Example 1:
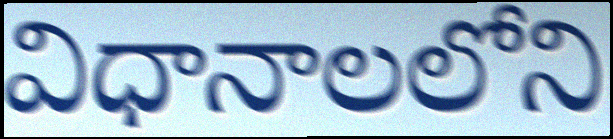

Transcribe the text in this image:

విధానాలలోని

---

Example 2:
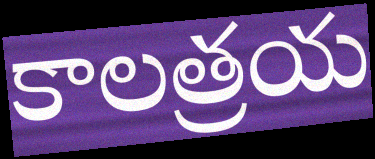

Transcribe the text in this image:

కాలత్రయ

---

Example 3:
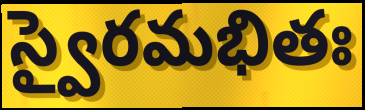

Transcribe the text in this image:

స్వైరమభితః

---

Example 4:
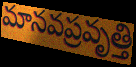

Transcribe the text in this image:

మానవప్రవృత్తి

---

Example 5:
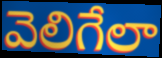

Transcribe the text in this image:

వెలిగేలా